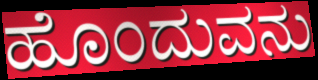
ಹೊಂದುವನು